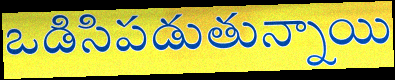
ఒడిసిపడుతున్నాయి